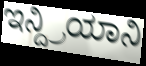
ಇನ್ದ್ರಿಯಾನಿ